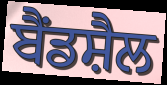
ਬੈਂਡਸ਼ੈਲ